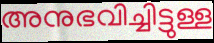
അനുഭവിച്ചിട്ടുള്ള